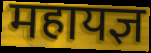
महायज्ञ